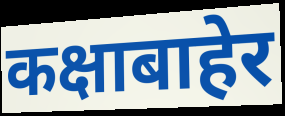
कक्षाबाहेर